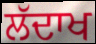
ਲੱਦਾਖ